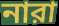
নারা